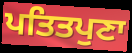
ਪਤਿਤਪੁਣਾ